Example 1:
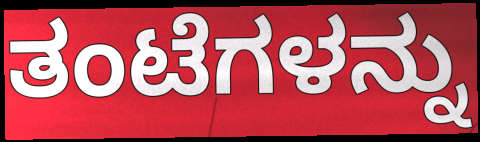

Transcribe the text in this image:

ತಂಟೆಗಳನ್ನು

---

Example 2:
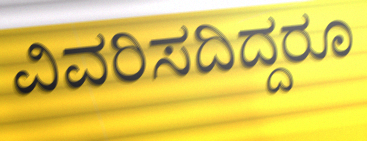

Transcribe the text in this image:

ವಿವರಿಸದಿದ್ದರೂ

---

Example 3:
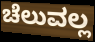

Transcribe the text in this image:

ಚೆಲುವಲ್ಲ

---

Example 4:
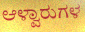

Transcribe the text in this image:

ಆಳ್ವಾರುಗಳ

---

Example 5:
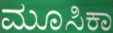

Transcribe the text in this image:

ಮೂಸಿಕಾ